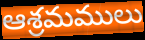
ఆశ్రమములు